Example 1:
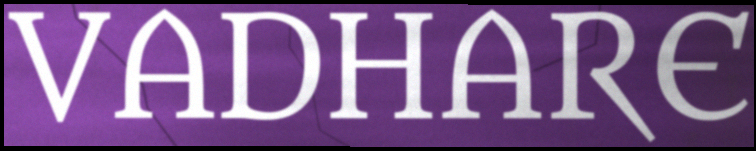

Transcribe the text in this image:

VADHARE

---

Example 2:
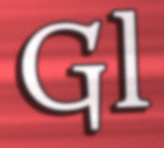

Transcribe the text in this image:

Gl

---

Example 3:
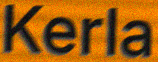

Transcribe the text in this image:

Kerla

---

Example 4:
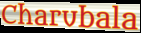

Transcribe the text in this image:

Charubala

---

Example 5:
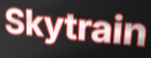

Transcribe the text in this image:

Skytrain